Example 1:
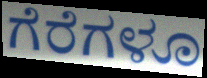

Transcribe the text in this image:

ಗೆರೆಗಳೂ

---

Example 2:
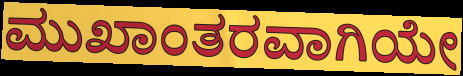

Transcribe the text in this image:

ಮುಖಾಂತರವಾಗಿಯೇ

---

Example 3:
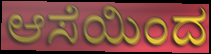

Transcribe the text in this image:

ಆಸೆಯಿಂದ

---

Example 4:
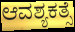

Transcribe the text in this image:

ಆವಶ್ಯಕತ್ಸೆ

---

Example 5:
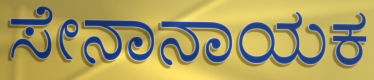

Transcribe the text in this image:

ಸೇನಾನಾಯಕ